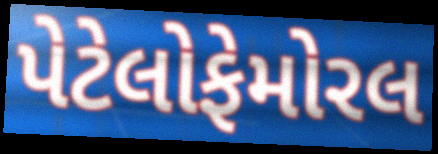
પેટેલોફેમોરલ